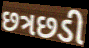
છત્રછડી